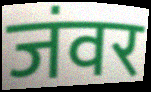
जंवर